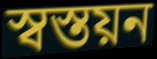
স্বস্তয়ন